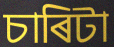
চাৰিটা